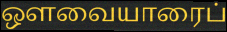
ஔவையாரைப்